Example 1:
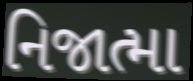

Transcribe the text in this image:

નિજાત્મા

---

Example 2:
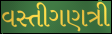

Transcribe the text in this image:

વસ્તીગણત્રી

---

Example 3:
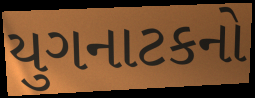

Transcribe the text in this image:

યુગનાટકનો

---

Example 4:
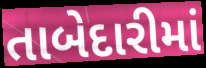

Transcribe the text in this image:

તાબેદારીમાં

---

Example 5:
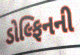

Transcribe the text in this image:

ડોલ્ફિનની